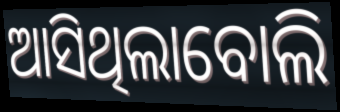
ଆସିଥିଲାବୋଲି